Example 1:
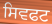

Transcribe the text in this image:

ਸਿਵਫਟ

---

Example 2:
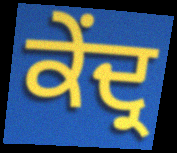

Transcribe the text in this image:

ਕੇਂਦ੍ਰ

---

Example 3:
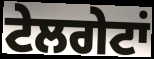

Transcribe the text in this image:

ਟੇਲਗੇਟਾਂ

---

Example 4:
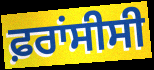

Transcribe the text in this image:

ਫ਼ਰਾਂਸੀਸੀ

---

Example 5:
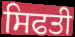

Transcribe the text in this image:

ਸਿਫਤੀ